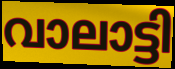
വാലാട്ടി